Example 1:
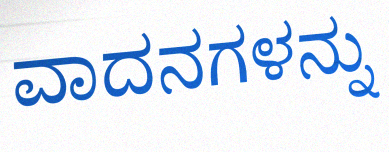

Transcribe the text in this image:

ವಾದನಗಳನ್ನು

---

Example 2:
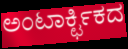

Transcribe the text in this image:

ಅಂಟಾರ್ಕ್ಟಿಕದ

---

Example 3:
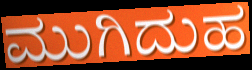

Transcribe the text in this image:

ಮುಗಿದುಹ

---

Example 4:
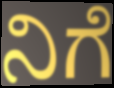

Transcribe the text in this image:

ನಿಗೆ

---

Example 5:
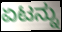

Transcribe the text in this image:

ಏಟನ್ನು